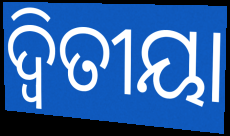
ଦ୍ବିତୀୟା